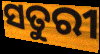
ସତୁରୀ